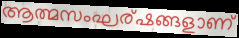
ആത്മസംഘര്ഷങ്ങളാണ്